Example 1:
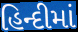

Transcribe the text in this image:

હિન્દીમાં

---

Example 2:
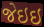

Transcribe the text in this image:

જેઇઇ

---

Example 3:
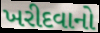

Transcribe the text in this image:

ખરીદવાનો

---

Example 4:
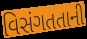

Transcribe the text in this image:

વિસંગતતાની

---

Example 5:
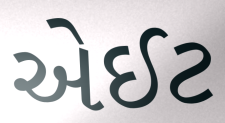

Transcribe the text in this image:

એઈટ